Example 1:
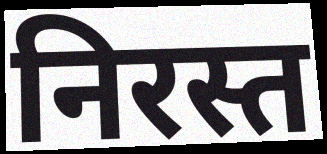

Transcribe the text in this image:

निरस्त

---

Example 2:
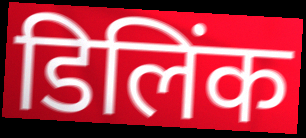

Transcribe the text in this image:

डिलिंक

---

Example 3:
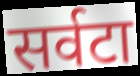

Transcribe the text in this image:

सर्वटा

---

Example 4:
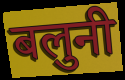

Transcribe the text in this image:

बलुनी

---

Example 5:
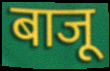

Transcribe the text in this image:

बाजू